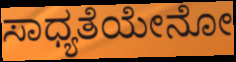
ಸಾಧ್ಯತೆಯೇನೋ